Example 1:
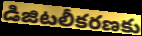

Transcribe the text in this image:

డిజిటలీకరణకు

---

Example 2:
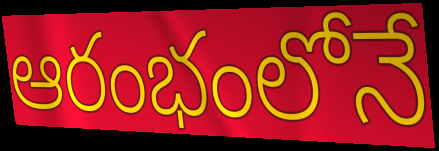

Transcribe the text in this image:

ఆరంభంలోనే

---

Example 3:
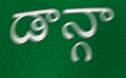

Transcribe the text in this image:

డాన్గా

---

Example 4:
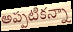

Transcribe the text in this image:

అప్పటికన్నా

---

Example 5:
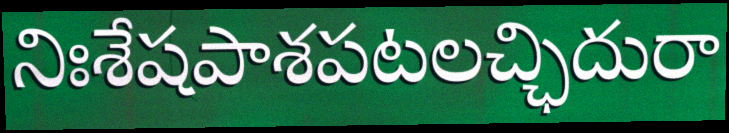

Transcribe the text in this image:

నిఃశేషపాశపటలచ్ఛిదురా